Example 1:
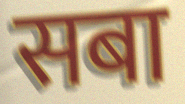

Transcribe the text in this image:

सबा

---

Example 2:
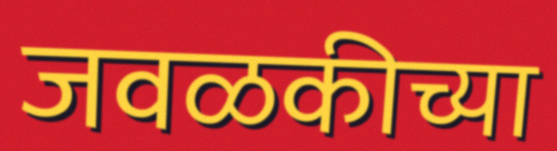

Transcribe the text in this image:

जवळकीच्या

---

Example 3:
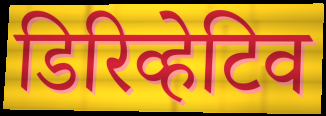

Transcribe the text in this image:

डिरिव्हेटिव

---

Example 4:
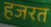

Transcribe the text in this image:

हजरत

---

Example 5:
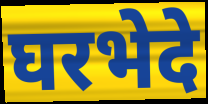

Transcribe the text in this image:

घरभेदे